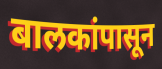
बालकांपासून